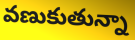
వణుకుతున్నా